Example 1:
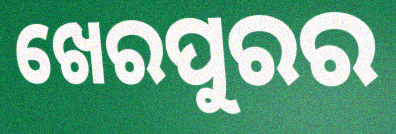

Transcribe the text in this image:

ଖେରପୁରର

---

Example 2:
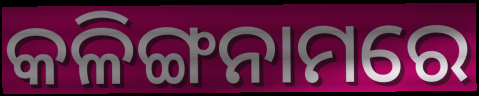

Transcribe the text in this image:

କଳିଙ୍ଗନାମରେ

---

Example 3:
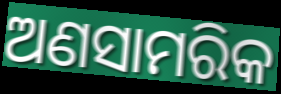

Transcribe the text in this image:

ଅଣସାମରିକ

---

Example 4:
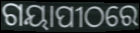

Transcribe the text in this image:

ଗୟାପୀଠରେ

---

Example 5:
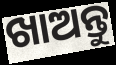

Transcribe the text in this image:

ଖାଅନ୍ତୁ